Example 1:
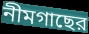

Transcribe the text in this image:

নীমগাছের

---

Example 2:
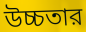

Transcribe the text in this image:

উচ্চতার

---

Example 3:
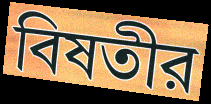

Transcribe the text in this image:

বিষতীর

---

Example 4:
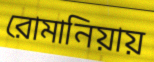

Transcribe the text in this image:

রোমানিয়ায়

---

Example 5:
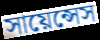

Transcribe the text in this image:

সায়েন্সেস